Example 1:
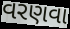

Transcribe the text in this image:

વરણવા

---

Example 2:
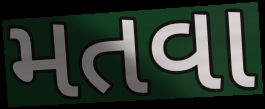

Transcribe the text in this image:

મતવા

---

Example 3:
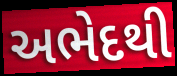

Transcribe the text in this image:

અભેદથી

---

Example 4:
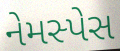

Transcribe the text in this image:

નેમસ્પેસ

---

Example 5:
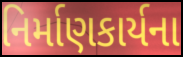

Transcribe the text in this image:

નિર્માણકાર્યના